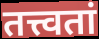
तत्त्वतां